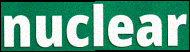
nuclear